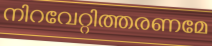
നിറവേറ്റിത്തരണമേ